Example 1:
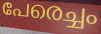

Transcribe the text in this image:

പേരെച്ചം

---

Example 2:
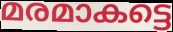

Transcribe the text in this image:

മരമാകട്ടെ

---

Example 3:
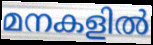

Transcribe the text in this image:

മനകളിൽ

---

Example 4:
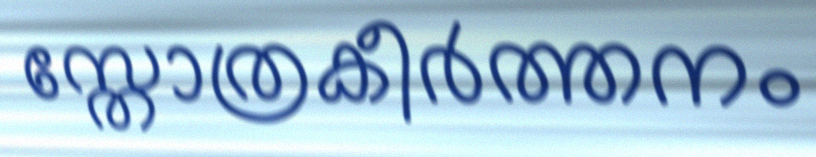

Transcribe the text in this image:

സ്തോത്രകീർത്തനം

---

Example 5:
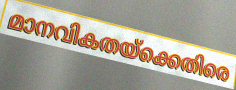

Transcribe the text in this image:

മാനവികതയ്ക്കെതിരെ